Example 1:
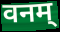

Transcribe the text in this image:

वनम्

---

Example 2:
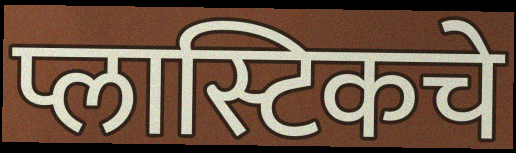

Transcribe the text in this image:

प्लास्टिकचे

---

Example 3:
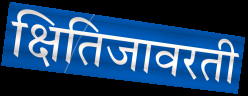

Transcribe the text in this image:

क्षितिजावरती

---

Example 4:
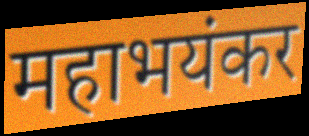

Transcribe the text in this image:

महाभयंकर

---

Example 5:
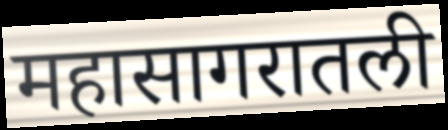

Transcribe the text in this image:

महासागरातली